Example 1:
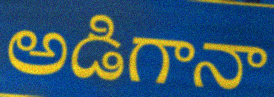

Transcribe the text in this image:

అడిగానా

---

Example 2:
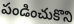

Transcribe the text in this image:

పండించుకొని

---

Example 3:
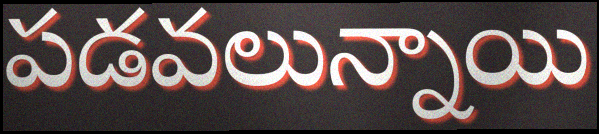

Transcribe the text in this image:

పడవలున్నాయి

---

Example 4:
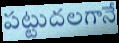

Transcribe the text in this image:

పట్టుదలగానే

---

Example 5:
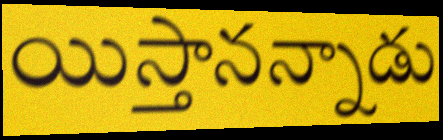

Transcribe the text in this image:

యిస్తానన్నాడు